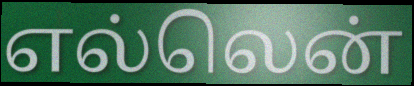
எல்லென்